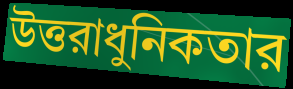
উত্তরাধুনিকতার